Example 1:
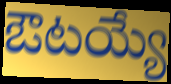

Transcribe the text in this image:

ఔటయ్యే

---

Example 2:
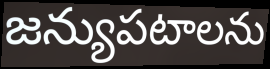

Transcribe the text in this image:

జన్యుపటాలను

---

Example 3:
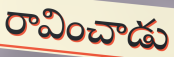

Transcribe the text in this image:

రావించాడు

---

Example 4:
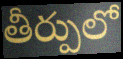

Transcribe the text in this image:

తీర్పులో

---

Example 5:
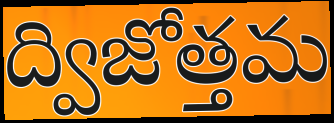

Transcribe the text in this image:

ద్విజోత్తమ